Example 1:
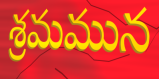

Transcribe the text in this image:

శ్రమమున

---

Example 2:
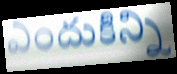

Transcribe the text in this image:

ఎందుకిన్ని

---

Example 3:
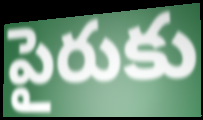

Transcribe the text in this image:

పైరుకు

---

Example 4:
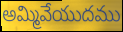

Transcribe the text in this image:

అమ్మివేయుదము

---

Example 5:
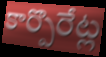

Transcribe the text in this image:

కార్పొరేట్ల